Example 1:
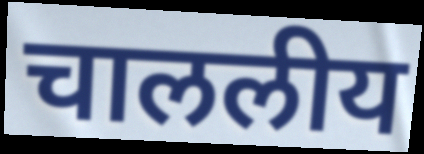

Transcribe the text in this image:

चाललीय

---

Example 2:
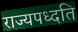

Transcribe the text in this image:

राज्यपध्दति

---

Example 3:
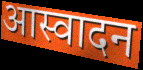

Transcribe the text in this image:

आस्वादन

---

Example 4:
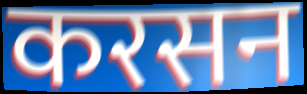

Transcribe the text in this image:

करसन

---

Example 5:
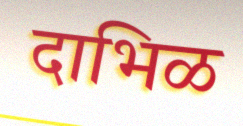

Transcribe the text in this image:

दाभिळ